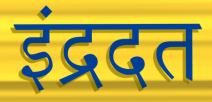
इंद्रदत